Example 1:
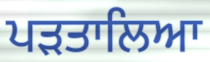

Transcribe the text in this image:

ਪੜਤਾਲਿਆ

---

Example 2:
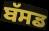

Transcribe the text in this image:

ਬੱਸਡ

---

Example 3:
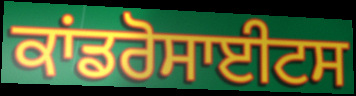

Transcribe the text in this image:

ਕਾਂਡਰੋਸਾਈਟਸ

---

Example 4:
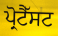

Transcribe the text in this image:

ਪ੍ਰੋਟੈੱਸਟ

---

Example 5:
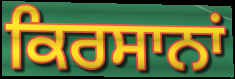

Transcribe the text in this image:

ਕਿਰਸਾਨਾਂ